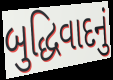
બુદ્ધિવાદનું